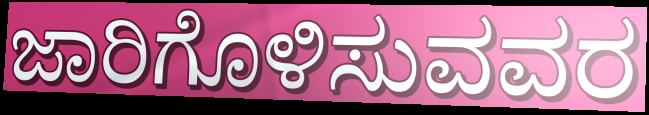
ಜಾರಿಗೊಳಿಸುವವರ